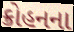
ક્રોહનના